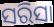
ସରିସା